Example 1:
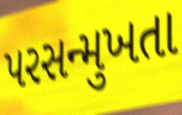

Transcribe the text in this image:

પરસન્મુખતા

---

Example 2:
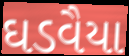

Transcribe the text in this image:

ઘડવૈયા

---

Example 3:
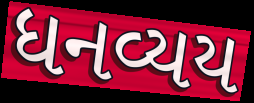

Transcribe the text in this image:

ધનવ્યય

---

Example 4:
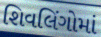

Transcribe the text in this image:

શિવલિંગોમાં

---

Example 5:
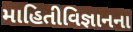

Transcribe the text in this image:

માહિતીવિજ્ઞાનના